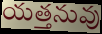
యత్తనువు